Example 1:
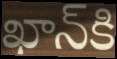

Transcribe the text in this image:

ఖాన్‌కి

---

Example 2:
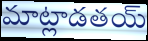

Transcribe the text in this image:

మాట్లాడతయ్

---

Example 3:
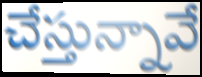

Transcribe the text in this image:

చేస్తున్నావే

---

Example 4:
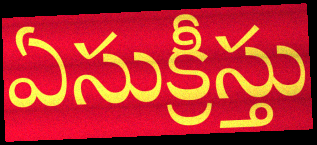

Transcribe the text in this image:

ఏసుక్రీస్తు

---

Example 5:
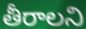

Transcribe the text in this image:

తీరాలని